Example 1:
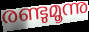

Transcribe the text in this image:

രണ്ടുമൂന്നു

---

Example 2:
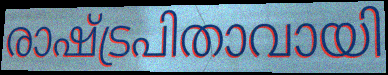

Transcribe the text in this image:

രാഷ്ട്രപിതാവായി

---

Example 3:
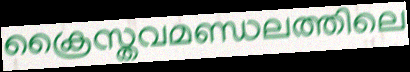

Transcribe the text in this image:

ക്രൈസ്തവമണ്ഡലത്തിലെ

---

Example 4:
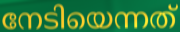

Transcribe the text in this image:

നേടിയെന്നത്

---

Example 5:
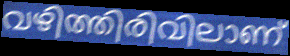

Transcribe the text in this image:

വഴിത്തിരിവിലാണ്